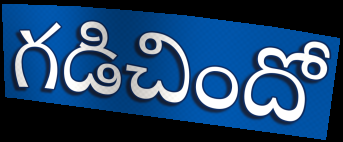
గడిచిందో